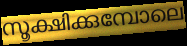
സൂക്ഷിക്കുമ്പോലെ